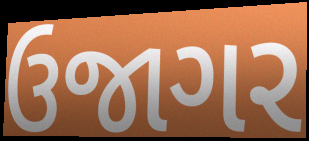
ઉજાગર